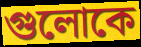
গুলোকে